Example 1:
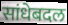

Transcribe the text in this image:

सांधेबदल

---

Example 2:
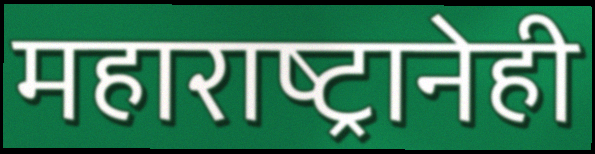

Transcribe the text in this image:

महाराष्ट्रानेही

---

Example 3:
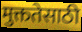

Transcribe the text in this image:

मुक्ततेसाठी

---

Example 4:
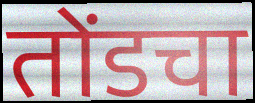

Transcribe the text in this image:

तोंडचा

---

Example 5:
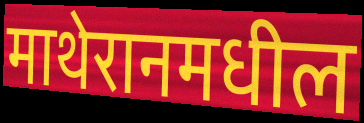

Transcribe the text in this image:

माथेरानमधील